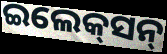
ଇଲେକ୍‌ସନ୍